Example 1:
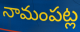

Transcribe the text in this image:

నామంపట్ల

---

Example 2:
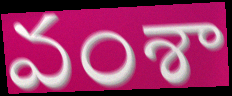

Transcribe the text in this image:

వంశా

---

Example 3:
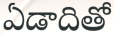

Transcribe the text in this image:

ఏడాదితో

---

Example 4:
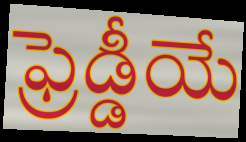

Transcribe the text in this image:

ఫ్రెడ్డీయే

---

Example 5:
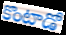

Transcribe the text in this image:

కొంటాడో